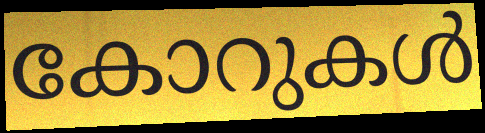
കോറുകൾ